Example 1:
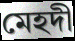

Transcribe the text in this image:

মেহদী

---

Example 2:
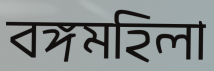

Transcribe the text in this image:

বঙ্গমহিলা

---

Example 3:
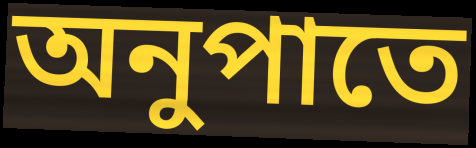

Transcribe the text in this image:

অনুপাতে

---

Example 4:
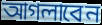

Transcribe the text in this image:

আগলাবেন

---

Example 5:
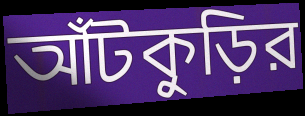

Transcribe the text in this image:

আঁটকুড়ির